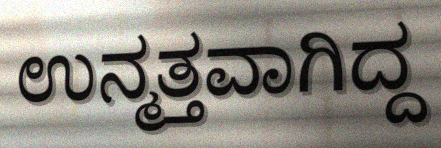
ಉನ್ಮತ್ತವಾಗಿದ್ದ